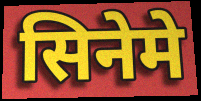
सिनेमे